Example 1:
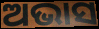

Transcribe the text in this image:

ଅଭାସ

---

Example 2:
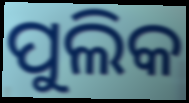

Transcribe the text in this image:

ପୁଲିକ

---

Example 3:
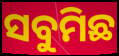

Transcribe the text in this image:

ସବୁମିଛ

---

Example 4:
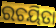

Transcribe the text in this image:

ରଚୟିତା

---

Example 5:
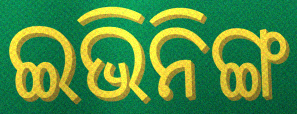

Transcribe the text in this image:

ଇଭିନିଙ୍ଗ